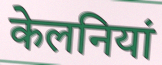
केलनियां